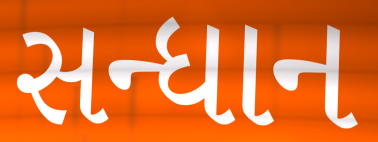
સન્ધાન